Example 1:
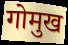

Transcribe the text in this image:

गोमुख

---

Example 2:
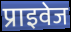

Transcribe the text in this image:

प्राइवेज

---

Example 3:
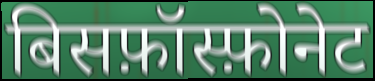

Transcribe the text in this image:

बिसफ़ॉस्फ़ोनेट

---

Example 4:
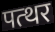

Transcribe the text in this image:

पत्‍थर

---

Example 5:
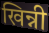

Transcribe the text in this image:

खिन्नी